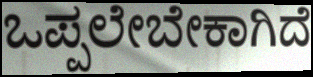
ಒಪ್ಪಲೇಬೇಕಾಗಿದೆ